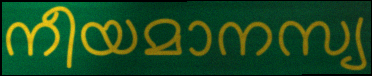
നീയമാനസ്യ